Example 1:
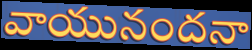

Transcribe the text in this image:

వాయునందనా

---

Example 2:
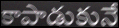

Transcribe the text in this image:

కాపాడుకునే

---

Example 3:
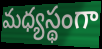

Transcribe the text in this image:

మధ్యస్థంగా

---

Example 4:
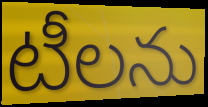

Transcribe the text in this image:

టీలను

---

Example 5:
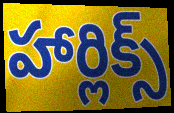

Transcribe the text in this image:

హార్లిక్స్